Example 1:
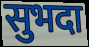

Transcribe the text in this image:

सुभदा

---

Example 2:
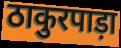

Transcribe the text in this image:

ठाकुरपाड़ा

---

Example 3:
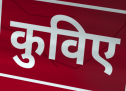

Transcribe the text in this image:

कुविए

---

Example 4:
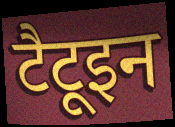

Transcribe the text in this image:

टैटूइन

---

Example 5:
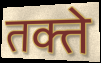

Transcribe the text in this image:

तक्ते